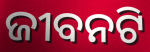
ଜୀବନଟି